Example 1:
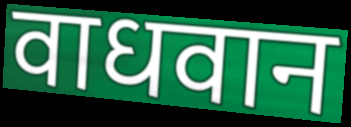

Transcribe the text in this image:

वाधवान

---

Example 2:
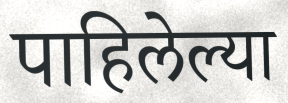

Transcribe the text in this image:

पाहिलेल्या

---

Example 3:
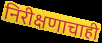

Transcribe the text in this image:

निरीक्षणाचाही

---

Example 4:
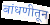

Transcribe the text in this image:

बांधणीतून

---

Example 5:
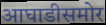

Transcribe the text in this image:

आघाडीसमोर